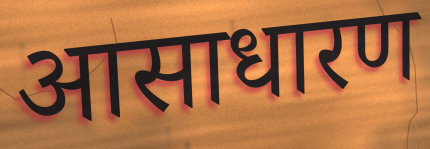
आसाधारण